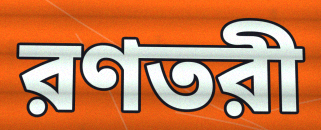
রণতরী